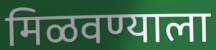
मिळवण्याला